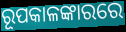
ରୂପକାଳଙ୍କାରରେ